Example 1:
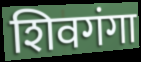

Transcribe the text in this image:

शिवगंगा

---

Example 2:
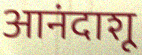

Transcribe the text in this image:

आनंदाश्रू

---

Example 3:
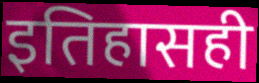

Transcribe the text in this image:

इतिहासही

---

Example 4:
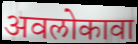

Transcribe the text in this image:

अवलोकावा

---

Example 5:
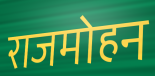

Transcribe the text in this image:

राजमोहन